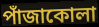
পাঁজাকোলা